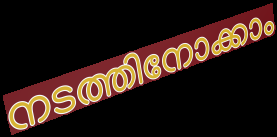
നടത്തിനോക്കാം